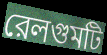
রেলগুমটি